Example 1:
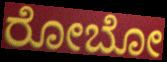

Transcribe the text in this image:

ರೋಬೋ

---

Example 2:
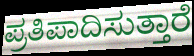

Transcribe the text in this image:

ಪ್ರತಿಪಾದಿಸುತ್ತಾರೆ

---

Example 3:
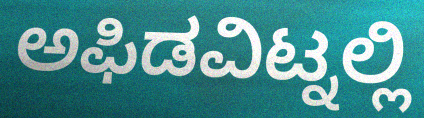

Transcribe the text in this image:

ಅಫಿಡವಿಟ್ನಲ್ಲಿ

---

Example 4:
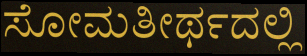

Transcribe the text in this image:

ಸೋಮತೀರ್ಥದಲ್ಲಿ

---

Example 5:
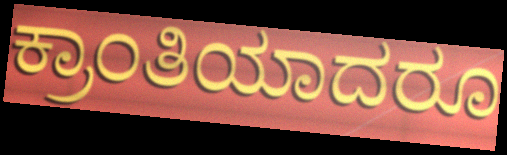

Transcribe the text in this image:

ಕ್ರಾಂತಿಯಾದರೂ